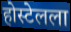
होस्टेलला